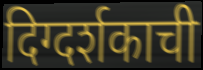
दिग्दर्शकाची